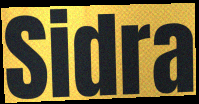
Sidra